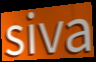
siva